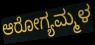
ಆರೋಗ್ಯಮ್ಮಳ